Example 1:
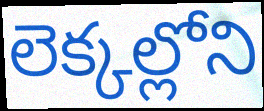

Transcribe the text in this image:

లెక్కల్లోని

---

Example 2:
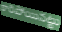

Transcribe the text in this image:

కారిపోయినట్టు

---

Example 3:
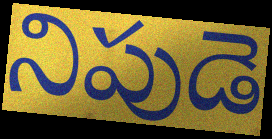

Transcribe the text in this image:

నిపుడె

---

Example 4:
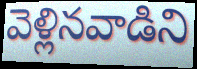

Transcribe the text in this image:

వెళ్లినవాడిని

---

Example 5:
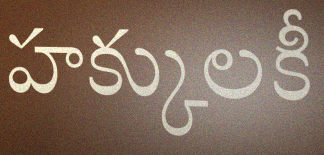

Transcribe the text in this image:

హక్కులకీ